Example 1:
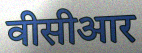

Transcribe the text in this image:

वीसीआर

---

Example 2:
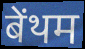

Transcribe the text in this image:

बेंथम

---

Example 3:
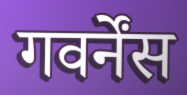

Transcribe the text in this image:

गवर्नेंस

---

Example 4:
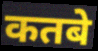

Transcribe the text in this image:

कतबे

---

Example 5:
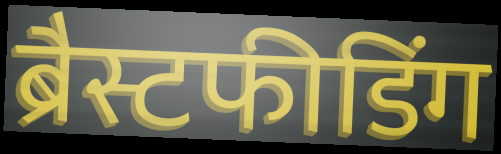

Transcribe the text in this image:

ब्रैस्टफीडिंग